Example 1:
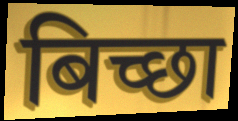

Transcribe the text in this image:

बिच्छा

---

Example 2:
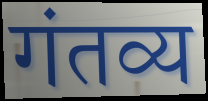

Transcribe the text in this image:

गंतव्य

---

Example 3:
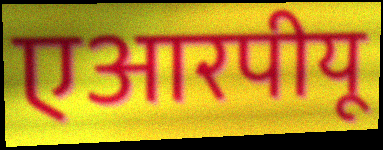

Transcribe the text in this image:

एआरपीयू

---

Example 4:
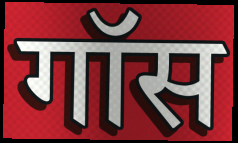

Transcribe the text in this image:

गॉस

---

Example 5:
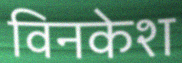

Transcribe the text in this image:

विनकेश